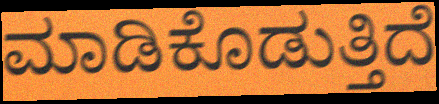
ಮಾಡಿಕೊಡುತ್ತಿದೆ